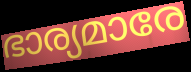
ഭാര്യമാരേ